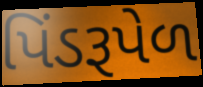
પિંડરૂપેળ